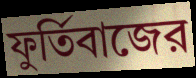
ফুর্তিবাজের